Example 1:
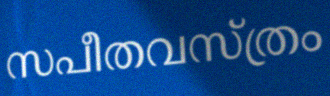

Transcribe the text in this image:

സപീതവസ്ത്രം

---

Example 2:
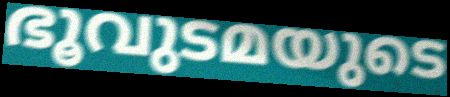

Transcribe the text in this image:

ഭൂവുടമയുടെ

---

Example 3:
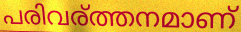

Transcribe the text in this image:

പരിവര്ത്തനമാണ്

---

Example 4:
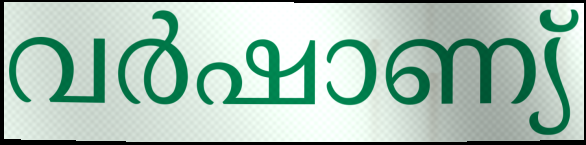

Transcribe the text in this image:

വർഷാണ്യ്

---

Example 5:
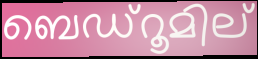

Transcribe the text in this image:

ബെഡ്റൂമില്